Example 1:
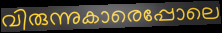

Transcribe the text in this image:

വിരുന്നുകാരെപ്പോലെ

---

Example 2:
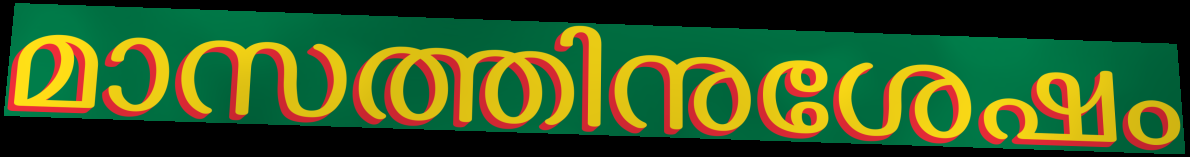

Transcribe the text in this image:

മാസത്തിനുശേഷം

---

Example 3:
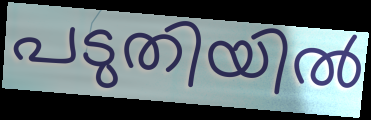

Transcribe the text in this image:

പടുതിയിൽ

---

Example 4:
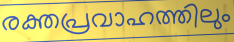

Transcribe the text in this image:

രക്തപ്രവാഹത്തിലും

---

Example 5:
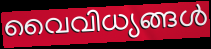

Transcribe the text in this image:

വൈവിധ്യങ്ങൾ